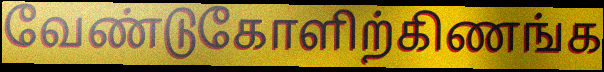
வேண்டுகோளிற்கிணங்க